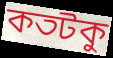
কতটকু